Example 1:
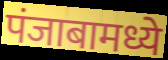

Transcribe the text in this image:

पंजाबामध्ये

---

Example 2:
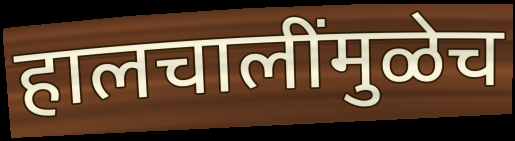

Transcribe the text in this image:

हालचालींमुळेच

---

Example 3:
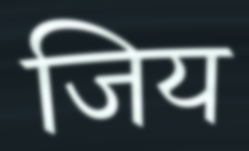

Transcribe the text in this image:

जिय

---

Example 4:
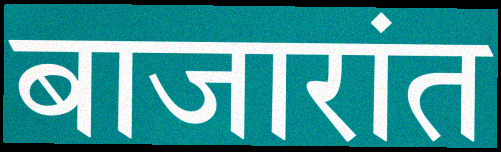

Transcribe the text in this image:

बाजारांत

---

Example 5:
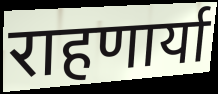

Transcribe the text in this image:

राहणार्या